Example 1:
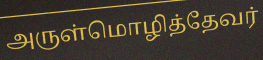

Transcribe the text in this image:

அருள்மொழித்தேவர்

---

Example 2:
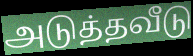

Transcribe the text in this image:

அடுத்தவீடு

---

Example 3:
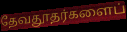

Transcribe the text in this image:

தேவதூதர்களைப்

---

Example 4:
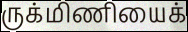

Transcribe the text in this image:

ருக்மிணியைக்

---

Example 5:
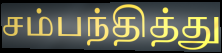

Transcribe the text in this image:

சம்பந்தித்து